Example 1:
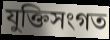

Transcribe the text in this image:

যুক্তিসংগত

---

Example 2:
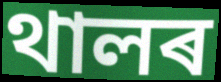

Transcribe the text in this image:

থালৰ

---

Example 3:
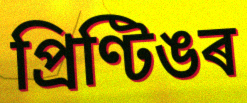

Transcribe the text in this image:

প্ৰিণ্টিঙৰ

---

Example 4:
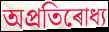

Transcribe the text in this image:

অপ্ৰতিৰোধ্য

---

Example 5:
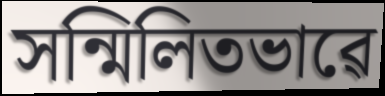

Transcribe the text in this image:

সন্মিলিতভাৱে